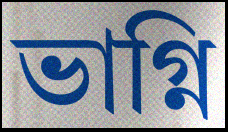
ভাগ্নি